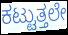
ಕಟ್ಟುತ್ತಲೇ